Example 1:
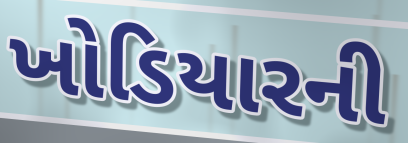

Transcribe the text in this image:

ખોડિયારની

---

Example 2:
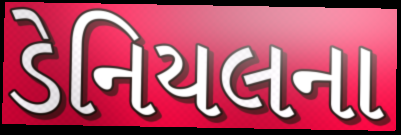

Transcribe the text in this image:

ડેનિયલના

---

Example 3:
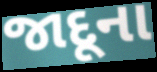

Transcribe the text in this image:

જાદૂના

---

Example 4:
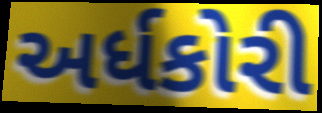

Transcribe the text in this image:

અર્ધકોરી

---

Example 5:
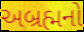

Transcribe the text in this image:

અબ્રહ્મનો